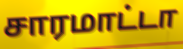
சாரமாட்டா